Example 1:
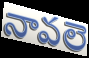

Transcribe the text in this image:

నావలె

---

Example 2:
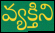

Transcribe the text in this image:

వ్యక్తిని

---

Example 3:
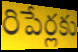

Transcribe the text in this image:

రిపేర్లకు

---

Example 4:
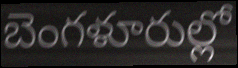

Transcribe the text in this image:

బెంగళూరుల్లో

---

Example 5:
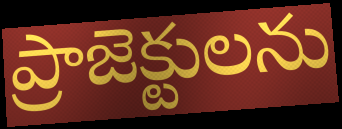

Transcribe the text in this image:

ప్రాజెక్టులను